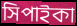
সিপাইকা